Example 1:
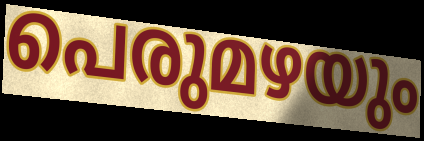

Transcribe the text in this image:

പെരുമഴയും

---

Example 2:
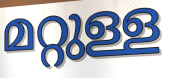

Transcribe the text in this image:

മറ്റുള്ള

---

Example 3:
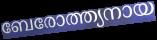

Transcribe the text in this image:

ബേരോത്ത്യനായ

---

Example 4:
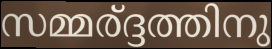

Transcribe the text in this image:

സമ്മര്ദ്ദത്തിനു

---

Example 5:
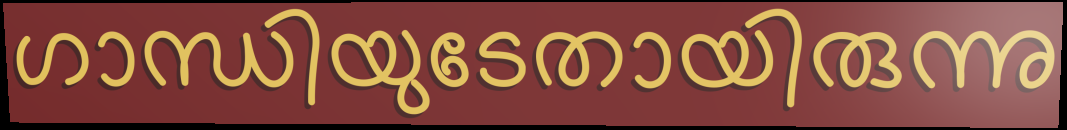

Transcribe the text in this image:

ഗാന്ധിയുടേതായിരുന്നു